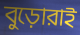
বুড়োরাই